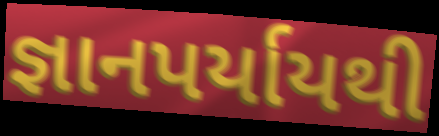
જ્ઞાનપર્યાયથી